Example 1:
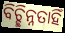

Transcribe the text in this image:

ବିଚ୍ଛିନ୍ନତାହିଁ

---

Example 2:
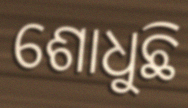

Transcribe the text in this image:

ଶୋଧୁଛି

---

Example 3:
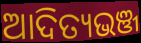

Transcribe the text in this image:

ଆଦିତ୍ୟଭଞ୍ଜ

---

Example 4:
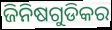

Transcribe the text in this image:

ଜିନିଷଗୁଡିକର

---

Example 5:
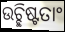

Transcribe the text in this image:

ଉଚ୍ଛିଷ୍ଟତାଂ